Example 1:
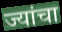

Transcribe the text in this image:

ज्यांचा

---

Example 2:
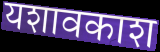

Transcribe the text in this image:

यशावकाश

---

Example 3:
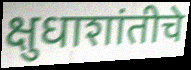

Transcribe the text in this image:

क्षुधाशांतीचे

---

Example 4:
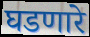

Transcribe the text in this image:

घडणारे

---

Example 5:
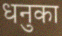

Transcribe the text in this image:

धनुका